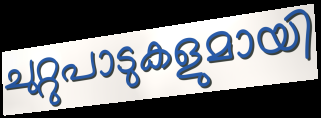
ചുറ്റുപാടുകളുമായി